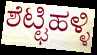
ಶೆಟ್ಟಿಹಳ್ಳಿ